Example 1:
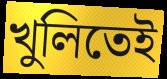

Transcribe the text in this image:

খুলিতেই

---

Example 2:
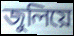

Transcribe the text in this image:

জুলিয়ে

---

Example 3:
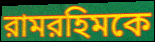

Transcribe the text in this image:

রামরহিমকে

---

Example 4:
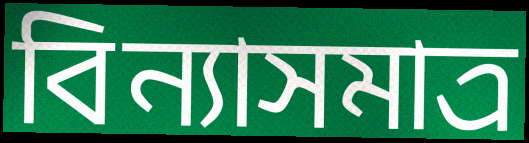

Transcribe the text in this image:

বিন্যাসমাত্র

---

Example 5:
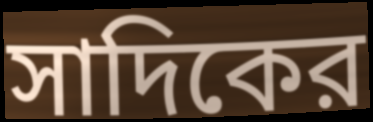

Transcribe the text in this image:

সাদিকের